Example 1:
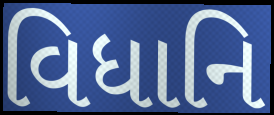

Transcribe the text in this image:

વિધાનિ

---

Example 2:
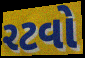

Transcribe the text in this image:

રટવો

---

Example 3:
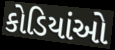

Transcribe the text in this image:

કોડિયાંઓ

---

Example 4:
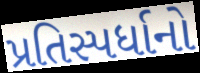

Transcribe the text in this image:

પ્રતિસ્પર્ધાનો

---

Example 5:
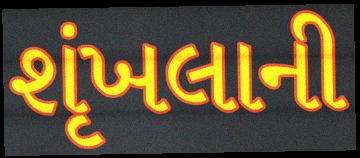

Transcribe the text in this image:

શૃંખલાની